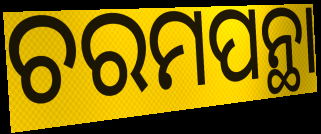
ଚରମପନ୍ଥା